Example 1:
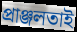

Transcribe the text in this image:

প্রাঞ্জলতাই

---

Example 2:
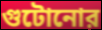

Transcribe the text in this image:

গুটোনোর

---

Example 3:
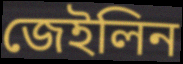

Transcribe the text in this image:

জেইলিন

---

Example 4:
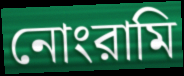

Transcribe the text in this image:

নোংরামি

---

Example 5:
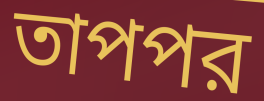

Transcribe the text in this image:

তাপপর